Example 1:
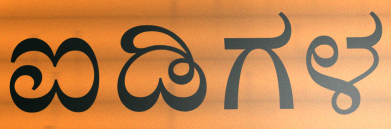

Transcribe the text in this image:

ಐಡಿಗಳ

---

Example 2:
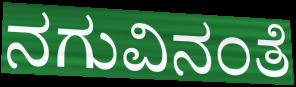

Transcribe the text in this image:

ನಗುವಿನಂತೆ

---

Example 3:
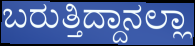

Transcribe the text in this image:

ಬರುತ್ತಿದ್ದಾನಲ್ಲಾ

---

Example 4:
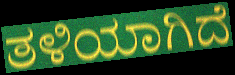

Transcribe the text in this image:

ತಳಿಯಾಗಿದೆ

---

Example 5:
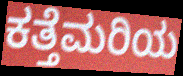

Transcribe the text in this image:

ಕತ್ತೆಮರಿಯ